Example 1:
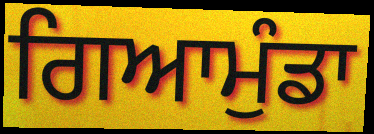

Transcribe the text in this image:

ਗਿਆਮੁੰਡਾ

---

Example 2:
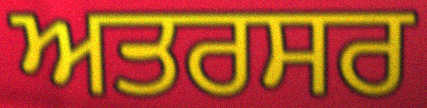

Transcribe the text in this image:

ਅਤਰਸਰ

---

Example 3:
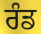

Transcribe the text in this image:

ਰੰਡ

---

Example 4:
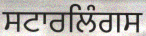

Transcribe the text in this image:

ਸਟਾਰਲਿੰਗਸ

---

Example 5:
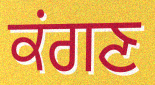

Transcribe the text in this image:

ਕਂਗਣ